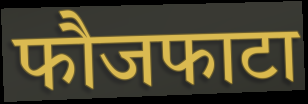
फौजफाटा